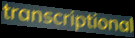
transcriptional